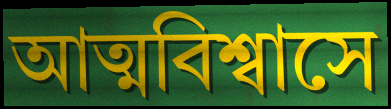
আত্মবিশ্বাসে